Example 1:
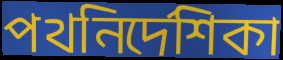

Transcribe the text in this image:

পথনির্দেশিকা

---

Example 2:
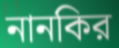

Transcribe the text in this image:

নানকির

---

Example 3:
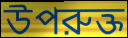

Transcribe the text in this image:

উপরুক্ত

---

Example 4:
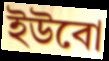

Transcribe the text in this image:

ইউবো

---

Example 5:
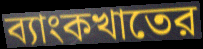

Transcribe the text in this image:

ব্যাংকখাতের